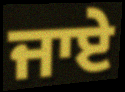
ਜਾਏੇ